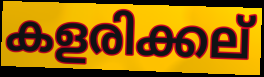
കളരിക്കല്